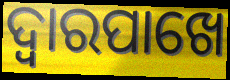
ଦ୍ୱାରପାଖେ